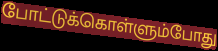
போட்டுக்கொள்ளும்போது